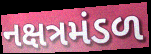
નક્ષત્રમંડળ